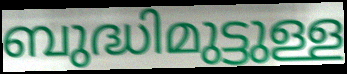
ബുദ്ധിമുട്ടുള്ള